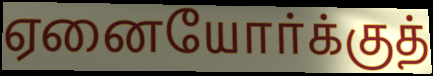
ஏனையோர்க்குத்